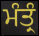
ਮੰਤ੍ਰੰ